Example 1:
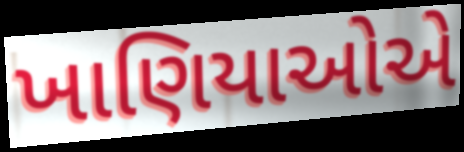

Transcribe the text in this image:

ખાણિયાઓએ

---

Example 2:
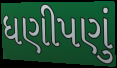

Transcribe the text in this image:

ધણીપણું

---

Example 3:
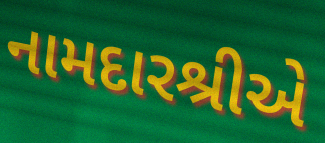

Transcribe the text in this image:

નામદારશ્રીએ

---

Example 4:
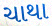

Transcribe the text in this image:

ચાથા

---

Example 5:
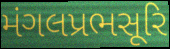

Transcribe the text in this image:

મંગલપ્રભસૂરિ